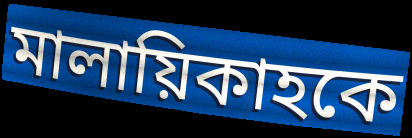
মালায়িকাহকে